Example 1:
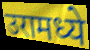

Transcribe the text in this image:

उरामध्ये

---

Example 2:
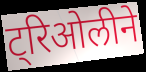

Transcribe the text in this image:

ट्रिओलीने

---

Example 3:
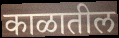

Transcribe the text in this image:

काळातील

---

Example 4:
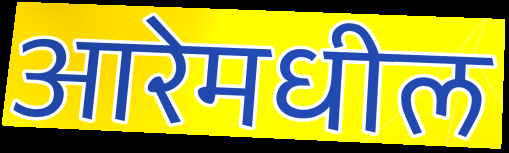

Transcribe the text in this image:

आरेमधील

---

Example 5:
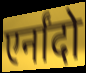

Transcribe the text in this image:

एर्नांदो